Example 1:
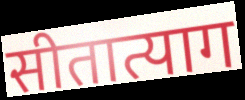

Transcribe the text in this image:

सीतात्याग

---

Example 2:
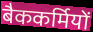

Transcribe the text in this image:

बैककर्मियों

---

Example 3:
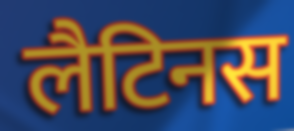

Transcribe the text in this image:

लैटिनस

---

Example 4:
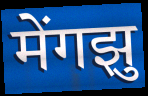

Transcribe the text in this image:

मेंगझु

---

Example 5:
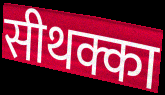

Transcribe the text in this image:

सीथक्का